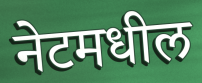
नेटमधील